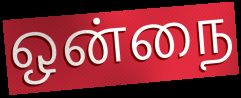
ஒன்நை